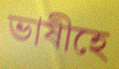
ভাষীহে